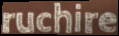
ruchire